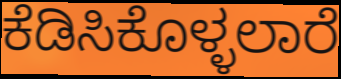
ಕೆಡಿಸಿಕೊಳ್ಳಲಾರೆ